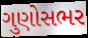
ગુણોસભર